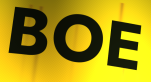
BOE